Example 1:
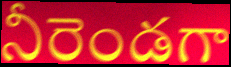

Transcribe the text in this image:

నీరెండగా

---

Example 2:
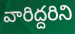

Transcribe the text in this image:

వారిద్దరిని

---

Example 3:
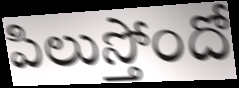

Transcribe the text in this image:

పిలుస్తోందో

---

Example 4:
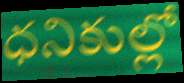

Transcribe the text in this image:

ధనికుల్లో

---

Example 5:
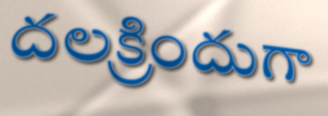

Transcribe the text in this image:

దలక్రిందుగా